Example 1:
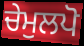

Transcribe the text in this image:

ਚੇਮੁਲਪੋ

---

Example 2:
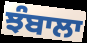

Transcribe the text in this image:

ਝੰਬਾਲਾ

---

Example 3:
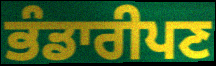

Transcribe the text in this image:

ਭੰਡਾਰੀਪਣ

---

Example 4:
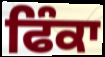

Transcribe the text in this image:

ਫਿੰਕਾ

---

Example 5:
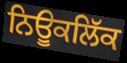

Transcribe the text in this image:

ਨਿਊਕਲਿੱਕ